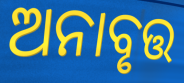
ଅନାବୃତ୍ତ